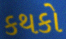
કથકો